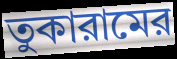
তুকারামের